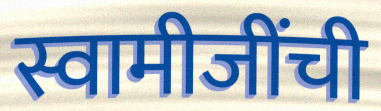
स्वामीजींची